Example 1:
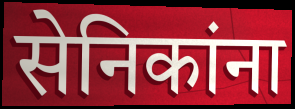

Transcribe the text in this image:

सेनिकांना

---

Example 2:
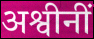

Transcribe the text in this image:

अश्वीनीं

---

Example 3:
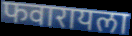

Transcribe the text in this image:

फवारायला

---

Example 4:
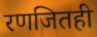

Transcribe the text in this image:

रणजितही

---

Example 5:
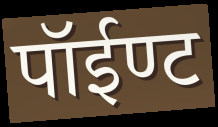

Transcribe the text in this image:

पॉईण्ट